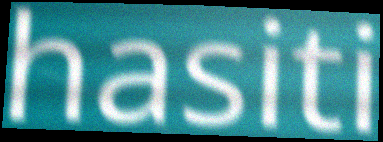
hasiti